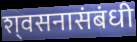
श्वसनासंबंधी